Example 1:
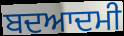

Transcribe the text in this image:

ਬਦਆਦਮੀ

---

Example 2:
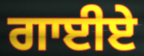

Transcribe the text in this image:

ਗਾਈਏ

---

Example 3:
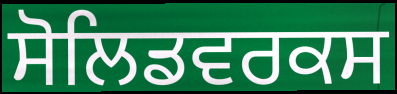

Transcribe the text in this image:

ਸੋਲਿਡਵਰਕਸ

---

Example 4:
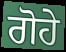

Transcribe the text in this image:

ਗੋਹੇ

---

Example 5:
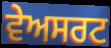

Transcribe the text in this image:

ਵੇਅਸਰਟ